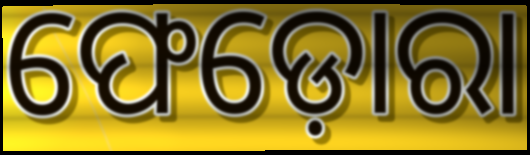
ଫେଡ଼ୋରା